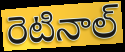
రెటినాల్